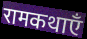
रामकथाएँ